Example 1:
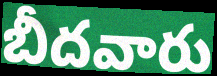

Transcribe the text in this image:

బీదవారు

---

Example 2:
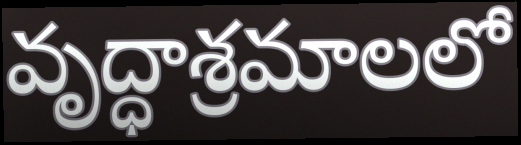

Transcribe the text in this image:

వృద్ధాశ్రమాలలో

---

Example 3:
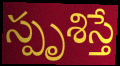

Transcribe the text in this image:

స్పృశిస్తే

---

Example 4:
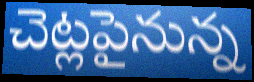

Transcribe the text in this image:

చెట్లపైనున్న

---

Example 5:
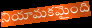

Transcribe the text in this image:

నియామకమైంది